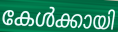
കേൾക്കായി